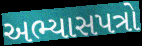
અભ્યાસપત્રો